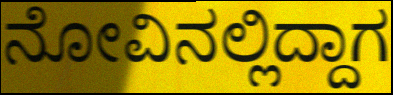
ನೋವಿನಲ್ಲಿದ್ದಾಗ